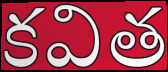
కవిత